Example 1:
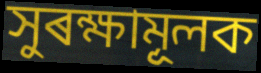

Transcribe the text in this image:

সুৰক্ষামূলক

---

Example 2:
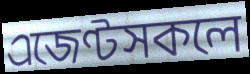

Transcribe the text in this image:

এজেণ্টসকলে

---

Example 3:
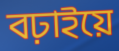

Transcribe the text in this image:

বঢ়াইয়ে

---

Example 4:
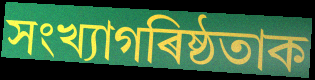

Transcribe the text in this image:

সংখ্যাগৰিষ্ঠতাক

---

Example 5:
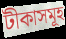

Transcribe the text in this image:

টীকাসমূহ